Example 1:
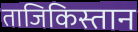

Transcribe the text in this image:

ताजिकिस्तान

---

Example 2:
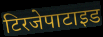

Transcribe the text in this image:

टिरजेपाटाइड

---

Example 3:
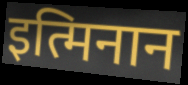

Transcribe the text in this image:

इत्मिनान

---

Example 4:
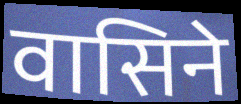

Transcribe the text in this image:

वासिने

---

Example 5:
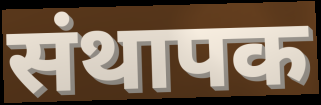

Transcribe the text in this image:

संथापक